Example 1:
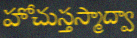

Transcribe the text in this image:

హోచుస్తస్మాద్వా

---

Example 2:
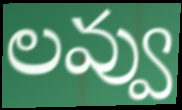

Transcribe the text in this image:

లవ్వు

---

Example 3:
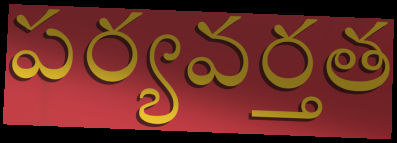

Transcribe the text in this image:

పర్యవర్తత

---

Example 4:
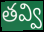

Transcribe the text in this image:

తవ్వి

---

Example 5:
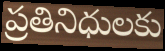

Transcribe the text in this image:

ప్రతినిధులకు